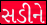
સડીને